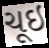
ચૂઇ